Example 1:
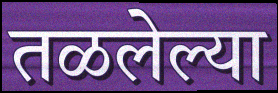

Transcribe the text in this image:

तळलेल्या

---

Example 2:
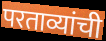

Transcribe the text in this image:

परताव्यांची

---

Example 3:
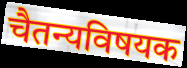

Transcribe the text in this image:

चैतन्यविषयक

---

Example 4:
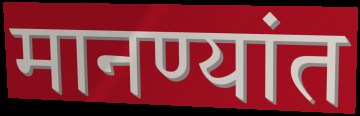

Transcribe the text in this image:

मानण्यांत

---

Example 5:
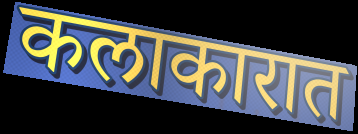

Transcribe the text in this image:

कलाकारात